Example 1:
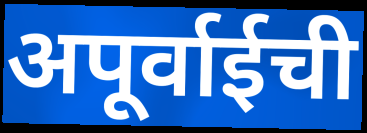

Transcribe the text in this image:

अपूर्वाईची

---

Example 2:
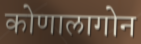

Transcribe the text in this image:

कोणालागोन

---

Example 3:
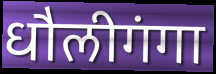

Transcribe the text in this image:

धौलीगंगा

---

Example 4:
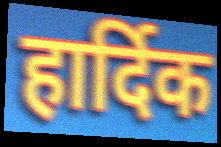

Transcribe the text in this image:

हार्दिक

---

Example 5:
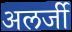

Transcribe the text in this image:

अलर्जी